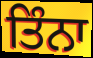
ਤਿੰਨਾ